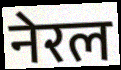
नेरल